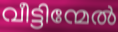
വീട്ടിന്മേൽ